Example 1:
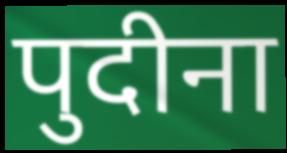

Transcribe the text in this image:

पुदीना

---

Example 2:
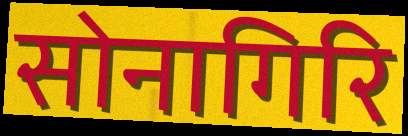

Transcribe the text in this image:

सोनागिरि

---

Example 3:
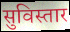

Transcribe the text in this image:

सुविस्तार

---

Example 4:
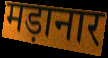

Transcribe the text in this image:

मड़ानार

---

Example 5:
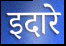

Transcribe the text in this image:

इदारे